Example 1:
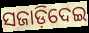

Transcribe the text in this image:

ସଜାଡ଼ିଦେଇ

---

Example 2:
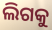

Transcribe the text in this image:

ଲିଗକୁ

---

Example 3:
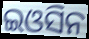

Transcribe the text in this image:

ଇଓସିନ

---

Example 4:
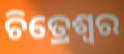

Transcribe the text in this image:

ଚିତ୍ରେଶ୍ୱର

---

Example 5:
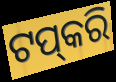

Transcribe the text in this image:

ଟପ୍‌କରି